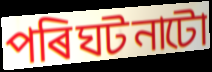
পৰিঘটনাটো